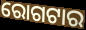
ରୋଗଟାର